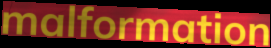
malformation